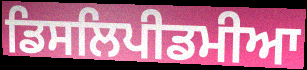
ਡਿਸਲਿਪੀਡਮੀਆ